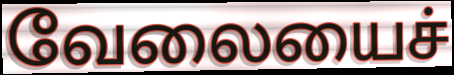
வேலையைச்